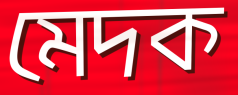
মেদক